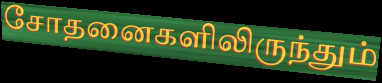
சோதனைகளிலிருந்தும்